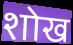
शोख